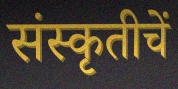
संस्कृतीचें